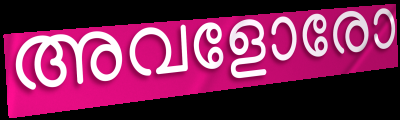
അവളോരോ